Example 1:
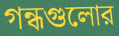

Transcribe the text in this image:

গন্ধগুলোর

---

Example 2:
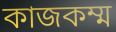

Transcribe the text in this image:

কাজকম্ম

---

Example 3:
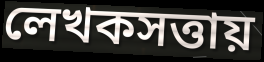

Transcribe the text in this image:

লেখকসত্তায়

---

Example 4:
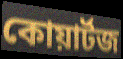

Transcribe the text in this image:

কোয়ার্টজ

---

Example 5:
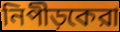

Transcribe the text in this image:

নিপীড়কেরা